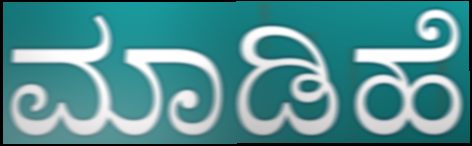
ಮಾಡಿಹೆ